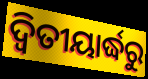
ଦ୍ଵିତୀୟାର୍ଦ୍ଧରୁ